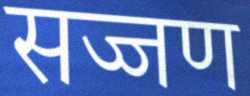
सज्जण